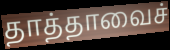
தாத்தாவைச்